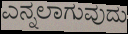
ಎನ್ನಲಾಗುವುದು